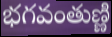
భగవంతుణ్ణి